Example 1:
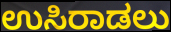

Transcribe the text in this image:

ಉಸಿರಾಡಲು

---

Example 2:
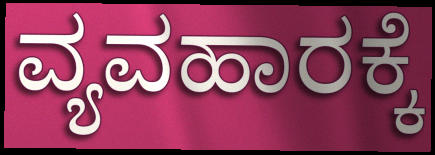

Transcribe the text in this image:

ವ್ಯವಹಾರಕ್ಕೆ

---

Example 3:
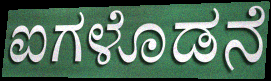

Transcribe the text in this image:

ಐಗಳೊಡನೆ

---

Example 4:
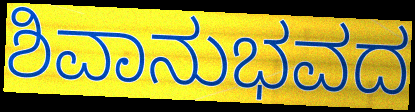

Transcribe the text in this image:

ಶಿವಾನುಭವದ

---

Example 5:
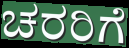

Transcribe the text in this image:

ಚರರಿಗೆ